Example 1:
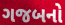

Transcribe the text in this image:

ગજબનો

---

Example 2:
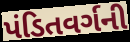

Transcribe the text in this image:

પંડિતવર્ગની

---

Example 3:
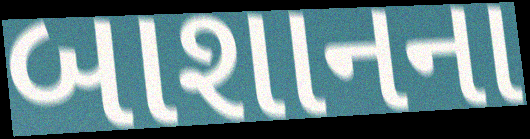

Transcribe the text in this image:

બાશાનના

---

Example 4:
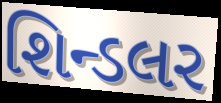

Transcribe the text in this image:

શિન્ડલર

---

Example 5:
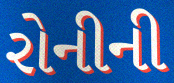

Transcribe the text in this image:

રોનીની